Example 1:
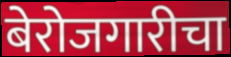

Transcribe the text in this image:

बेरोजगारीचा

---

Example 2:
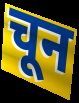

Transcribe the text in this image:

चून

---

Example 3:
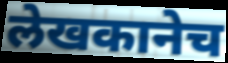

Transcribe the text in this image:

लेखकानेच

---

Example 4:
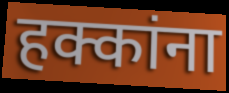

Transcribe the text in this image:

हक्कांना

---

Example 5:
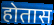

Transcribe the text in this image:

होतास